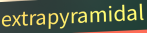
extrapyramidal